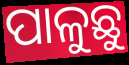
ପାଳୁଛୁ